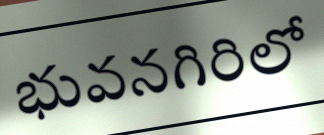
భువనగిరిలో